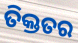
ତିକ୍ତତର